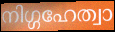
നിഗ്ഗഹേത്വാ